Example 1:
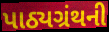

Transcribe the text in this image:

પાઠ્યગ્રંથની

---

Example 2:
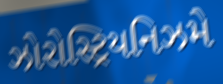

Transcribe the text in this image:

ઝોરોસ્ટ્રિયનિઝમે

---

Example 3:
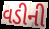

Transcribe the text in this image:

વડીની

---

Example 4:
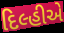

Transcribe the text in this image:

દિલ્હીએ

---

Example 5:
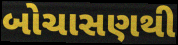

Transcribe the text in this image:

બોચાસણથી